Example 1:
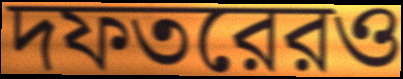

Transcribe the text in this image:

দফতরেরও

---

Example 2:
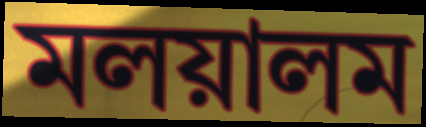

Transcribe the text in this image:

মলয়ালম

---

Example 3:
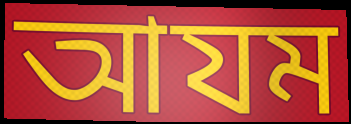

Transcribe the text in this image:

আযম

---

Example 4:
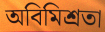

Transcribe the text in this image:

অবিমিশ্রতা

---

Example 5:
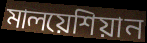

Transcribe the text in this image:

মালয়েশিয়ান